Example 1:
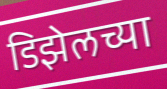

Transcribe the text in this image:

डिझेलच्या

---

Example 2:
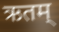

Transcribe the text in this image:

ऋतम्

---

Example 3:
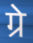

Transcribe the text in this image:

ग्रे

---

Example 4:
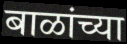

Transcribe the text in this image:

बाळांच्या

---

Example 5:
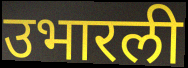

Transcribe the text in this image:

उभारली